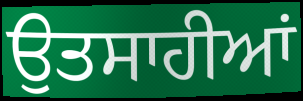
ਉਤਸਾਹੀਆਂ